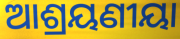
ଆଶ୍ରୟଣୀୟା